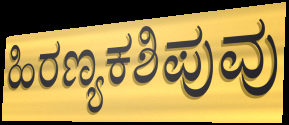
ಹಿರಣ್ಯಕಶಿಪುವು